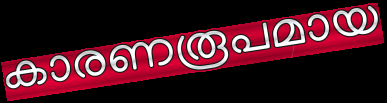
കാരണരൂപമായ